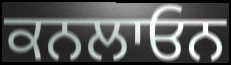
ਕਨਲਾਓਨ